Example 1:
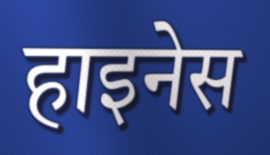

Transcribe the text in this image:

हाइनेस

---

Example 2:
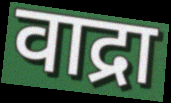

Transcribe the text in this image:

वाद्रा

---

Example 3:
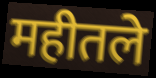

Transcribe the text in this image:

महीतले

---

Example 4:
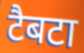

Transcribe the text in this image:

टैबटा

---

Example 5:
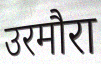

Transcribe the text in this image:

उरमौरा